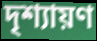
দৃশ্যায়ণ